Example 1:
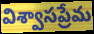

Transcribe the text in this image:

విశ్వాసప్రేమ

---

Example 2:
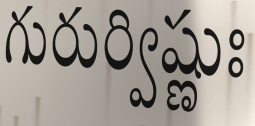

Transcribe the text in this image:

గురుర్విష్ణుః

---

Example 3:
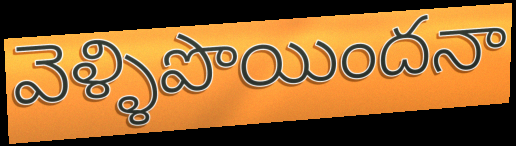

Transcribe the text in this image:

వెళ్ళిపొయిందనా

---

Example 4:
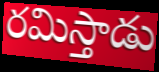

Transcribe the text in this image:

రమిస్తాడు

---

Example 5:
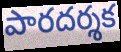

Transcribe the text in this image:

పారదర్శక